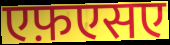
एफ़एसए